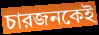
চারজনকেই